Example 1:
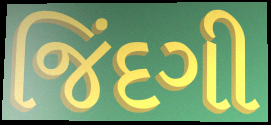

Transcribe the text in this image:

જિંદગી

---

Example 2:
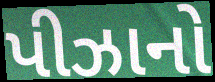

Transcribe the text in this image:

પીઝાનો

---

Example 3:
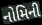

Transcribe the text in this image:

નોમિની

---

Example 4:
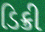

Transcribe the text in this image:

ડિક્રી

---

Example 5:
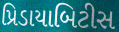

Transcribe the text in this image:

પ્રિડાયાબિટીસ